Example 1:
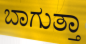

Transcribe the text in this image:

ಬಾಗುತ್ತಾ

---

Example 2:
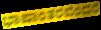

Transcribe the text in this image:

ಭಾಷಾಂತರವೆಂದರೆ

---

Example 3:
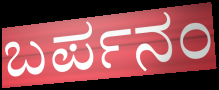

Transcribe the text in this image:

ಬರ್ಪನಂ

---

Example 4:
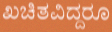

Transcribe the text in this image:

ಖಚಿತವಿದ್ದರೂ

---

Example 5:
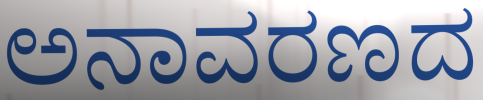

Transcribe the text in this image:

ಅನಾವರಣದ